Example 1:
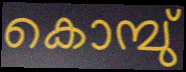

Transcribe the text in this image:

കൊമ്പു്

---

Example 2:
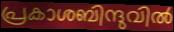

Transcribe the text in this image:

പ്രകാശബിന്ദുവിൽ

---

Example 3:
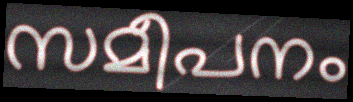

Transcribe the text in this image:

സമീപനം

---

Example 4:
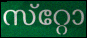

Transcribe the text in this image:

സ്‌റ്റോ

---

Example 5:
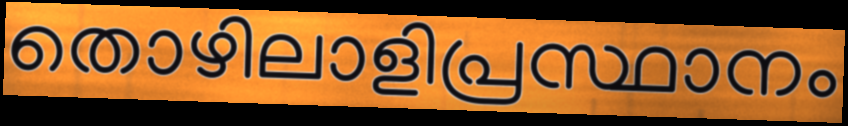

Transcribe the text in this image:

തൊഴിലാളിപ്രസ്ഥാനം